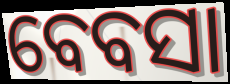
ବେବସା